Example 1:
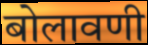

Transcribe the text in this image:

बोलावणी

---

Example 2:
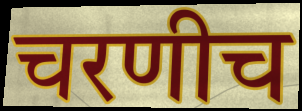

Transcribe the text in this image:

चरणीच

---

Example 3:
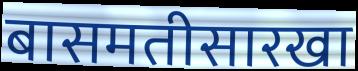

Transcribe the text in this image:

बासमतीसारखा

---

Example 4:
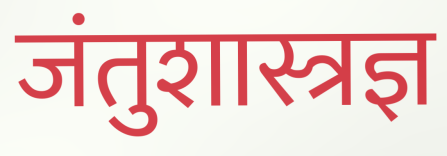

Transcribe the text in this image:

जंतुशास्त्रज्ञ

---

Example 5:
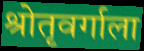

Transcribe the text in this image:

श्रोतृवर्गाला